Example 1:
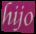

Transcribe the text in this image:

hijo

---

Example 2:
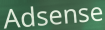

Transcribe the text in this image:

Adsense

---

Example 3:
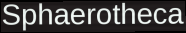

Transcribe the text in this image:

Sphaerotheca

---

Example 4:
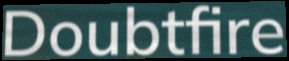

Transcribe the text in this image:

Doubtfire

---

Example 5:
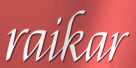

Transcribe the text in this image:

raikar